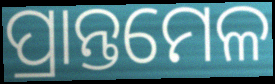
ପ୍ରାନ୍ତମେଳ